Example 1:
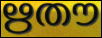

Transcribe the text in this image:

ഋതൗ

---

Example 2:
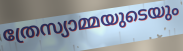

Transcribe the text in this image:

ത്രേസ്യാമ്മയുടെയും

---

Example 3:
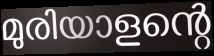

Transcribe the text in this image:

മുരിയാളന്റെ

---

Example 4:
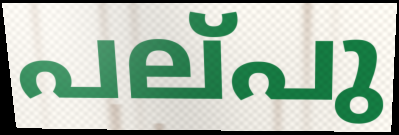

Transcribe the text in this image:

പല്‌പു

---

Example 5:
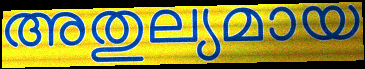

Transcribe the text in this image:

അതുല്യമായ